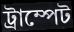
ট্ৰাম্পেট